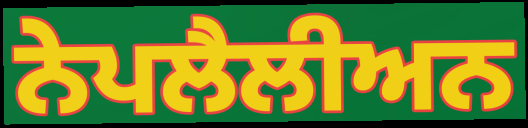
ਨੇਪਲੈਲੀਅਨ